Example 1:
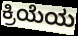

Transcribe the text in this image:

ಕ್ರಿಯೆಯ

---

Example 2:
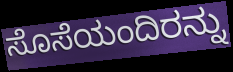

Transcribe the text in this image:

ಸೊಸೆಯಂದಿರನ್ನು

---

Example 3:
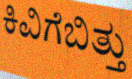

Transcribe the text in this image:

ಕಿವಿಗೆಬಿತ್ತು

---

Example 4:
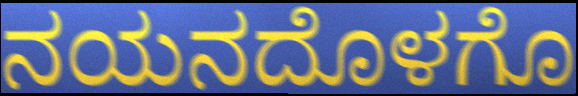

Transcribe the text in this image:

ನಯನದೊಳಗೊ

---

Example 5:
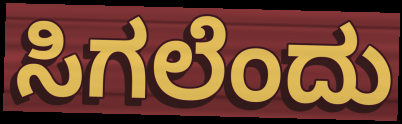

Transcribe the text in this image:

ಸಿಗಲೆಂದು